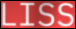
LISS